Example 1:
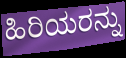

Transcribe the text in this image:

ಹಿರಿಯರನ್ನು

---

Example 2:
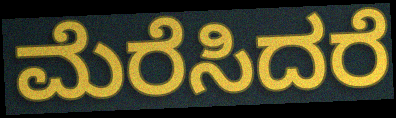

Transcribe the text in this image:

ಮೆರೆಸಿದರೆ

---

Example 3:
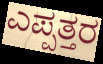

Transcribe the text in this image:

ಎಪ್ಪತ್ತರ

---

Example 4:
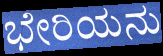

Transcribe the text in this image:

ಭೇರಿಯನು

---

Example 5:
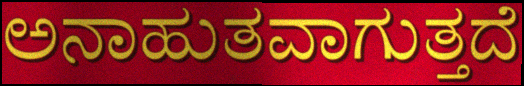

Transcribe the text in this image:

ಅನಾಹುತವಾಗುತ್ತದೆ